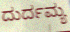
ದುರ್ದಮ್ಯ